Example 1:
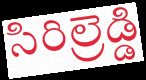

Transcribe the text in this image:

సిరిల్రెడ్డి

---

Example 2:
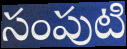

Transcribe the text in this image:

సంపుటి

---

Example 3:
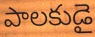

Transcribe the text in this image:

పాలకుడై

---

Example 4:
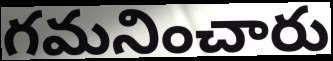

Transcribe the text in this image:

గమనించారు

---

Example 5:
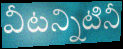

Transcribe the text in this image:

వీటన్నిటినీ